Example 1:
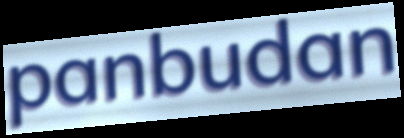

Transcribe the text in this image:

panbudan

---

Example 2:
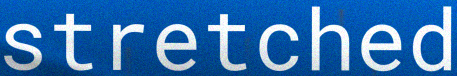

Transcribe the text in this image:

stretched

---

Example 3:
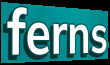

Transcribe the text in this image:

ferns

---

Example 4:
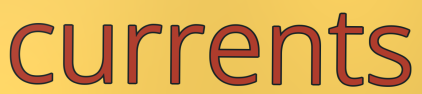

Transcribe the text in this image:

currents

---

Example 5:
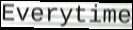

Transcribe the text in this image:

Everytime